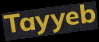
Tayyeb